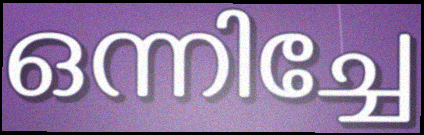
ഒന്നിച്ചേ